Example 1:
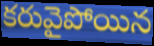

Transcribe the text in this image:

కరువైపోయిన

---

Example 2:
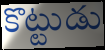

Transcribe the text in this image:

కొట్టుడు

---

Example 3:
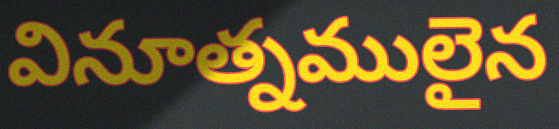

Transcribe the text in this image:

వినూత్నములైన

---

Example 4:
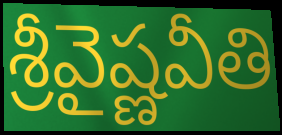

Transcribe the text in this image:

శ్రీవైష్ణవీతి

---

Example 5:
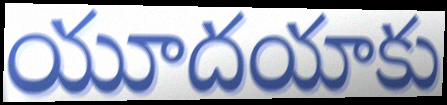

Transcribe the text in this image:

యూదయాకు